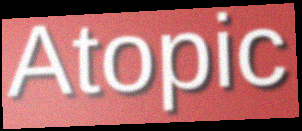
Atopic